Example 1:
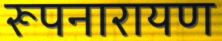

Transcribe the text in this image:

रूपनारायण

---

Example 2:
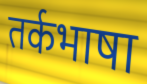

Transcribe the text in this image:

तर्कभाषा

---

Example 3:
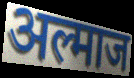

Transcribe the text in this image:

अल्माज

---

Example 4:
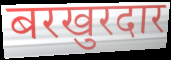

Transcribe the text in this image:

बरखुरदार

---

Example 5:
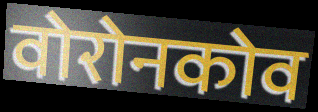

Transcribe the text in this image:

वोरोनकोव